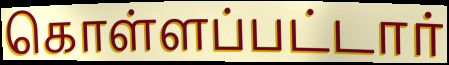
கொள்ளப்பட்டார்